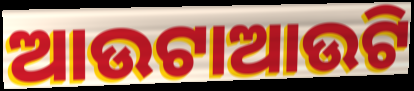
ଆଉଟାଆଉଟି